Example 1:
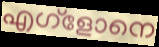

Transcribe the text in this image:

എഗ്ളോനെ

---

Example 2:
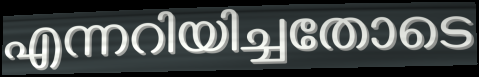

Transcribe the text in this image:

എന്നറിയിച്ചതോടെ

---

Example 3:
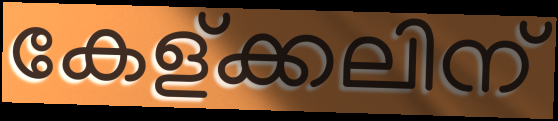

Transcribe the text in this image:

കേള്ക്കലിന്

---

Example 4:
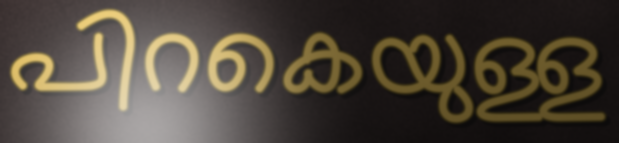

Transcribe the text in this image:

പിറകെയുള്ള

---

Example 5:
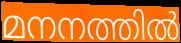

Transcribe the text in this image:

മനനത്തിൽ